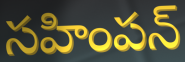
సహింపన్